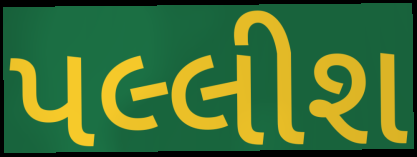
પલ્લીશ